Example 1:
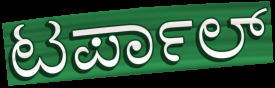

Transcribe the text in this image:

ಟರ್ಪಾಲ್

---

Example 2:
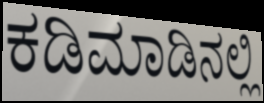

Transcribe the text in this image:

ಕಡಿಮಾಡಿನಲ್ಲಿ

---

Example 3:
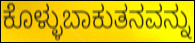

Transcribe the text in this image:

ಕೊಳ್ಳುಬಾಕುತನವನ್ನು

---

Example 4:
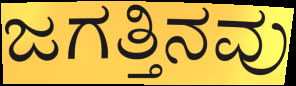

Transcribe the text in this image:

ಜಗತ್ತಿನವು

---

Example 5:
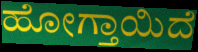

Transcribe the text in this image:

ಹೋಗ್ತಾಯಿದೆ